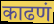
काढणं